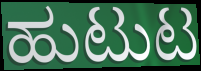
ಹುಟುಟ